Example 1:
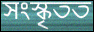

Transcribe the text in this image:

সংস্কৃতত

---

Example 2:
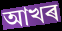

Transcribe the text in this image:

আখৰ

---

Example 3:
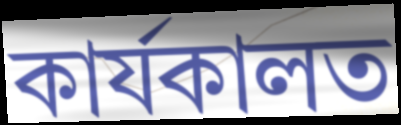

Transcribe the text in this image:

কাৰ্যকালত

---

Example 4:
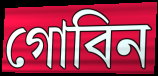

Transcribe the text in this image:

গোবিন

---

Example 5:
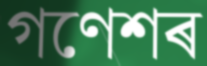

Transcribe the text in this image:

গণেশৰ